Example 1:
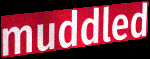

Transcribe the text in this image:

muddled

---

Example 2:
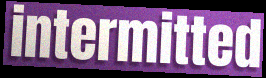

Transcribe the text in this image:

intermitted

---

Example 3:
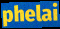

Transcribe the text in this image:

phelai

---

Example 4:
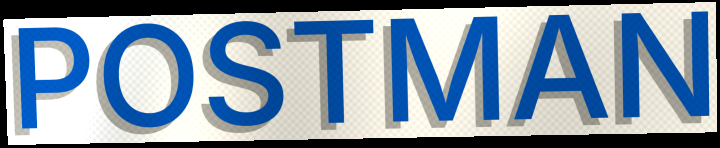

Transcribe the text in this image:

POSTMAN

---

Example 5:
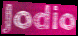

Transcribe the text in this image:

Jodio